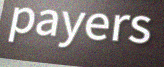
payers